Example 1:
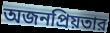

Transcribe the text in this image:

অজনপ্রিয়তার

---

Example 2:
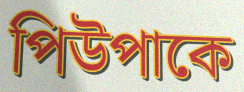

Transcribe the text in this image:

পিউপাকে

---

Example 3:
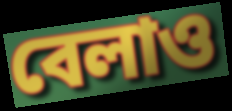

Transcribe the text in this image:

বেলাও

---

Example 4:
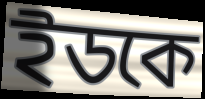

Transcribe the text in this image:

ইডকে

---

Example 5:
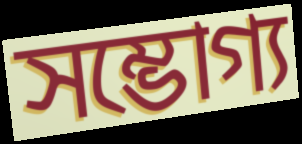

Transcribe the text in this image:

সম্ভোগ্য